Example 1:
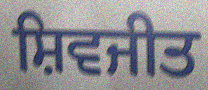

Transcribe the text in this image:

ਸ਼ਿਵਜੀਤ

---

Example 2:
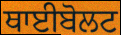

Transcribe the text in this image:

ਥਾਈਬੋਲਟ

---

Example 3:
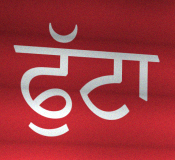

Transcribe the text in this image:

ਫੁੱਟਾ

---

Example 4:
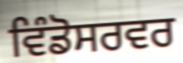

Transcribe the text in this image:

ਵਿੰਡੋਸਰਵਰ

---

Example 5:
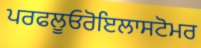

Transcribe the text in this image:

ਪਰਫਲੂਓਰੋਇਲਾਸਟੋਮਰ